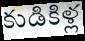
కుడికిళ్ల